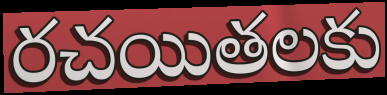
రచయితలకు